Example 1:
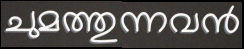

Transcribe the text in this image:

ചുമത്തുന്നവൻ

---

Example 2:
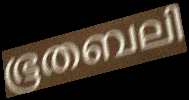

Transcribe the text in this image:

ഭൂതബലി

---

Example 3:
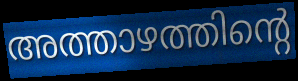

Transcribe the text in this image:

അത്താഴത്തിന്റെ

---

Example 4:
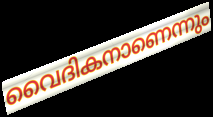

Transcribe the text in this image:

വൈദികനാണെന്നും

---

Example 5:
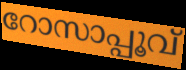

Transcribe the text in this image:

റോസാപ്പൂവ്